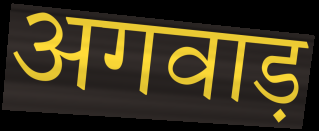
अगवाड़